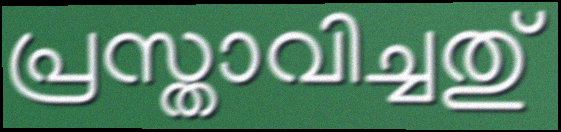
പ്രസ്താവിച്ചതു്